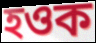
হওক